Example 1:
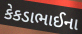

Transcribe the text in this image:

કેકડાભાઈના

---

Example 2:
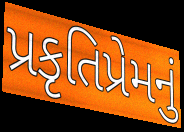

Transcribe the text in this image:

પ્રકૃતિપ્રેમનું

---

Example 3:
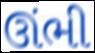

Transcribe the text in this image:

ઊંભી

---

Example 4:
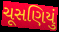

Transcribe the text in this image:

ચૂસણિયું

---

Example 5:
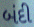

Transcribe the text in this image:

બંદી